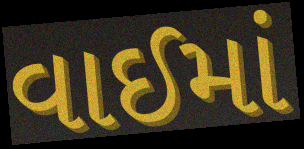
વાઈમાં